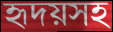
হৃদয়সহ